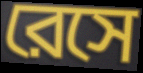
রেসে